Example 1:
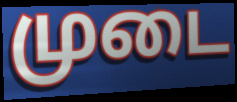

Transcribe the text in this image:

முடை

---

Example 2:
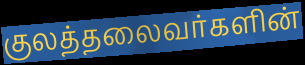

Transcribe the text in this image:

குலத்தலைவர்களின்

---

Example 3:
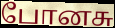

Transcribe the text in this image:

போனசு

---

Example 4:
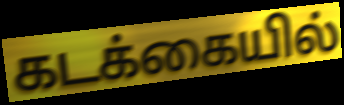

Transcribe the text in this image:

கடக்கையில்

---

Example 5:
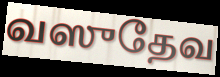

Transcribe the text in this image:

வஸுதேவ